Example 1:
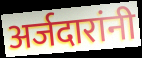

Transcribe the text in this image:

अर्जदारांनी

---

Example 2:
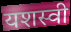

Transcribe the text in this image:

यशस्‍वी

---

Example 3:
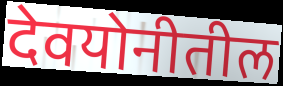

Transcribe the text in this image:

देवयोनीतील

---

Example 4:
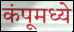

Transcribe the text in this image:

कंपूमध्ये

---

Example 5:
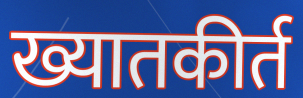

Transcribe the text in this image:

ख्यातकीर्त